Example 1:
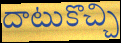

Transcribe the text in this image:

దాటుకొచ్చి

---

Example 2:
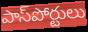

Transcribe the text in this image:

పాస్‌పోర్టులు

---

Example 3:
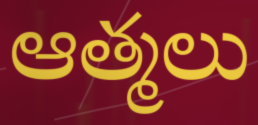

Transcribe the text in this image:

ఆత్మలు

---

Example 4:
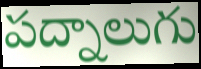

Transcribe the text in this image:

పద్నాలుగు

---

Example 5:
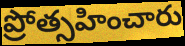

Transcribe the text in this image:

ప్రోత్సహించారు